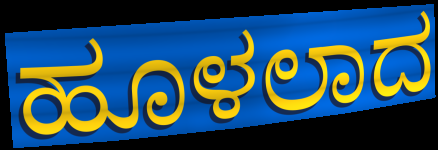
ಹೂಳಲಾದ